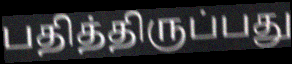
பதித்திருப்பது